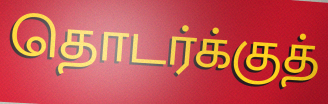
தொடர்க்குத்